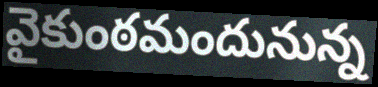
వైకుంఠమందునున్న